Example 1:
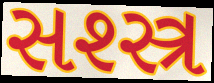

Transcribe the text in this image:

સશ્સ્ત્ર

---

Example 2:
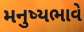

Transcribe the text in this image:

મનુષ્યભાવે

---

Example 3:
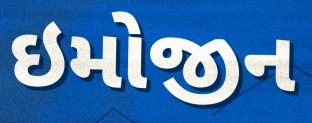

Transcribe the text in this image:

ઇમોજીન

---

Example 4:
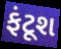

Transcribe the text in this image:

ફંટૂશ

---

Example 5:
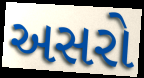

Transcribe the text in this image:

અસરો